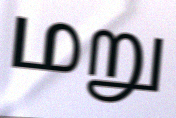
மறு